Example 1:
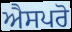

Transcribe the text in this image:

ਐਸਪਰੋ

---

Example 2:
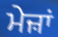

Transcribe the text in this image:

ਮੇਜ਼ਾਂ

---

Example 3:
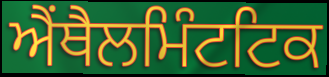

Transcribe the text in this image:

ਐਂਥੈਲਮਿੰਟਟਿਕ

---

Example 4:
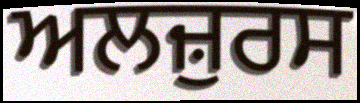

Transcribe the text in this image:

ਅਲਜ਼ੁਰਸ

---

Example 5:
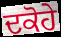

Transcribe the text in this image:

ਦਕੋਹੇ